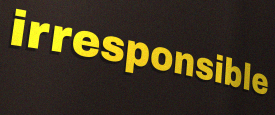
irresponsible